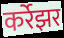
कर्रेझर